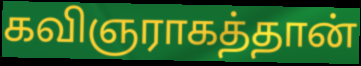
கவிஞராகத்தான்